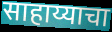
साहाय्याचा